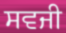
ਸਵਜੀ